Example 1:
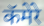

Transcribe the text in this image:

कॅमेरे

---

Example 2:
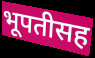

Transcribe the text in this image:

भूपतीसह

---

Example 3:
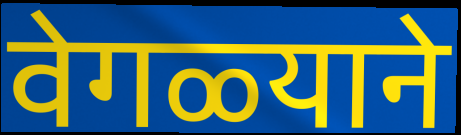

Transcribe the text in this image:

वेगळ्याने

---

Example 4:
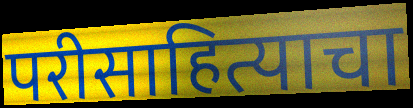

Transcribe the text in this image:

परीसाहित्याचा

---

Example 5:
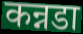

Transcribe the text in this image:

कन्नडा